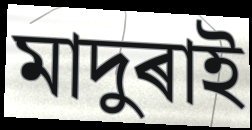
মাদুৰাই